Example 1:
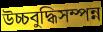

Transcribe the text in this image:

উচ্চবুদ্ধিসম্পন্ন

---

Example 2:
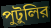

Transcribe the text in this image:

পুটুলির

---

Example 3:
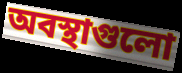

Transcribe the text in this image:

অবস্থাগুলো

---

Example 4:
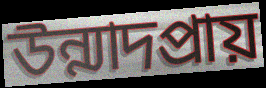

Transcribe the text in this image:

উন্মাদপ্রায়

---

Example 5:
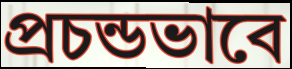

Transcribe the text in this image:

প্রচন্ডভাবে